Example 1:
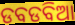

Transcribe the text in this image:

ଡବଡବିଆ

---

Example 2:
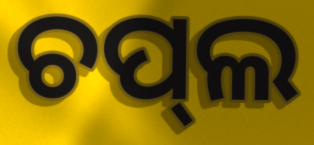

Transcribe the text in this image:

ଚପ୍‌ଲ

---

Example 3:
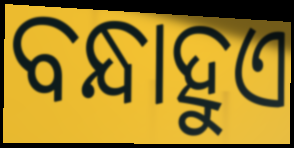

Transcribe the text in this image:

ବନ୍ଧାହୁଏ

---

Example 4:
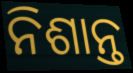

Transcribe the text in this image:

ନିଶାନ୍ତ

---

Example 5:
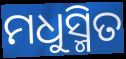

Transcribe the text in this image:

ମଧୁସ୍ମିତ